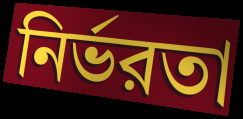
নির্ভরতা